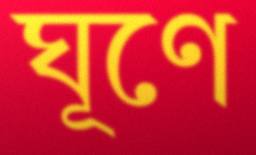
ঘূণে